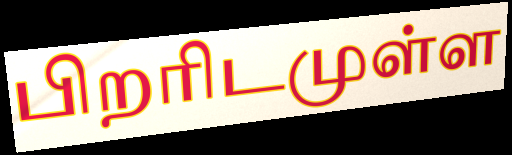
பிறரிடமுள்ள